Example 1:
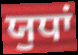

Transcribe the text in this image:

ਯੁਧਾਂ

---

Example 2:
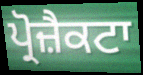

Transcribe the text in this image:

ਪ੍ਰੋਜ਼ੈਕਟਾ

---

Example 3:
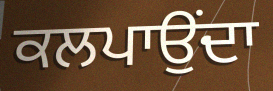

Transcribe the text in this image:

ਕਲਪਾਉਂਦਾ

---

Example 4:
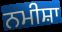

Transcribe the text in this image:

ਨਮੀਸ਼ਾ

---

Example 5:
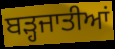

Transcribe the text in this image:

ਬੜ੍ਹਜਾਤੀਆਂ